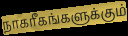
நாகரீகங்களுக்கும்